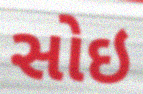
સોઇ